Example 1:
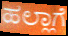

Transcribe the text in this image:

ಹಲ್ಲಾಗೆ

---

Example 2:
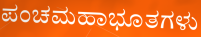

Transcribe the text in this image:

ಪಂಚಮಹಾಭೂತಗಳು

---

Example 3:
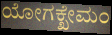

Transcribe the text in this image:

ಯೋಗಕ್ಖೇಮಂ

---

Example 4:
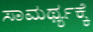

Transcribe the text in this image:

ಸಾಮರ್ಥ್ಯಕ್ಕೆ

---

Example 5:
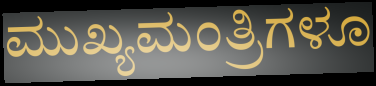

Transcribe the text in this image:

ಮುಖ್ಯಮಂತ್ರಿಗಳೂ